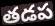
తడప